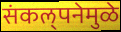
संकल्पनेमुळे